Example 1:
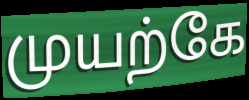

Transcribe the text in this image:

முயற்கே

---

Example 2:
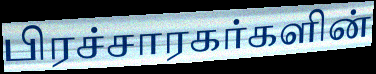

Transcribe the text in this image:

பிரச்சாரகர்களின்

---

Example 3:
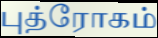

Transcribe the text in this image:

புத்ரோகம்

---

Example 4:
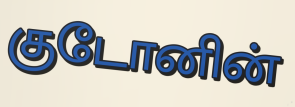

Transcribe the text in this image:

குடோனின்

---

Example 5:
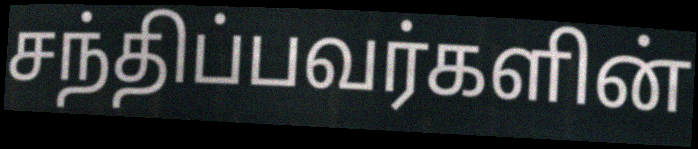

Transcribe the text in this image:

சந்திப்பவர்களின்